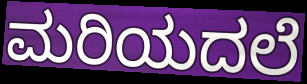
ಮರಿಯದಲೆ